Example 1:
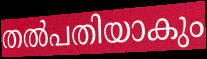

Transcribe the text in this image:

തൽപതിയാകും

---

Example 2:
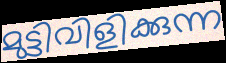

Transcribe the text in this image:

മുട്ടിവിളിക്കുന്ന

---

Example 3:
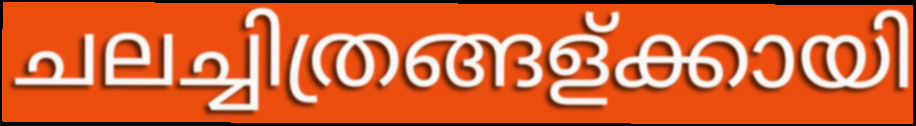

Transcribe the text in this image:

ചലച്ചിത്രങ്ങള്ക്കായി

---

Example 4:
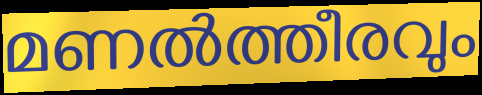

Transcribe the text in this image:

മണൽത്തീരവും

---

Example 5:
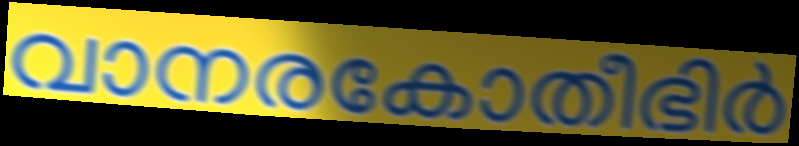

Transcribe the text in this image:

വാനരകോതീഭിർ